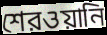
শেরওয়ানি